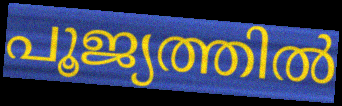
പൂജ്യത്തിൽ